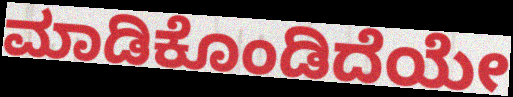
ಮಾಡಿಕೊಂಡಿದೆಯೇ